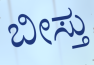
ಬೀಸ್ತು